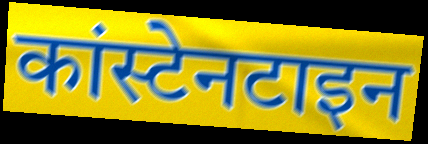
कांस्टेनटाइन